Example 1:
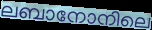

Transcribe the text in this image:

ലബാനോനിലെ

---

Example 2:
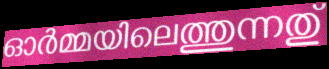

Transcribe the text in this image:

ഓർമ്മയിലെത്തുന്നതു്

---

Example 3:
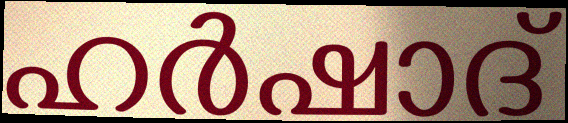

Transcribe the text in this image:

ഹർഷാദ്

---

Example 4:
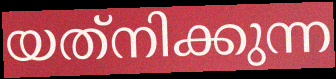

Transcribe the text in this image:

യത്‌നിക്കുന്ന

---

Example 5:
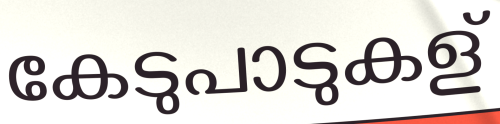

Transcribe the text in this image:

കേടുപാടുകള്